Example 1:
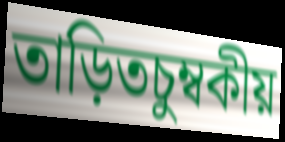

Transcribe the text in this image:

তাড়িতচুম্বকীয়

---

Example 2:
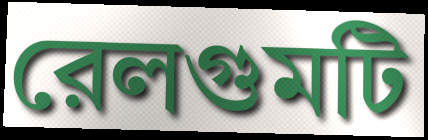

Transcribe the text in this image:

রেলগুমটি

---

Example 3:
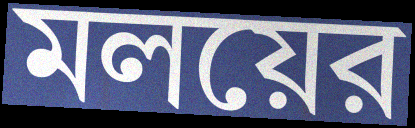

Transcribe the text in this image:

মলয়ের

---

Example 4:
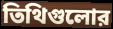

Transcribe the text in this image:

তিথিগুলোর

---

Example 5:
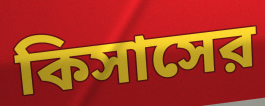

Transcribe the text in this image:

কিসাসের